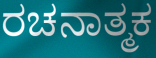
ರಚನಾತ್ಮಕ